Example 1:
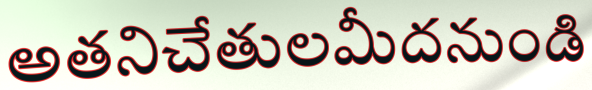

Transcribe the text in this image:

అతనిచేతులమీదనుండి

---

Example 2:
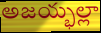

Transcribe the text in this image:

అజయ్భల్లా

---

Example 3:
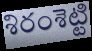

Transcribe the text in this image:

శిరంశెట్టి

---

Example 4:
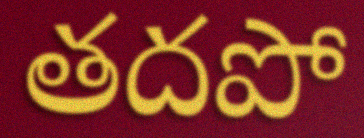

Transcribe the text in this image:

తదపో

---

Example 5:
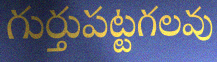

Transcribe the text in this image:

గుర్తుపట్టగలవు